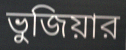
ভুজিয়ার